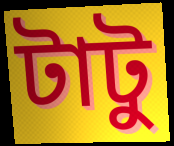
টাটু